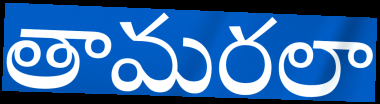
తామరలా